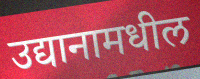
उद्यानामधील